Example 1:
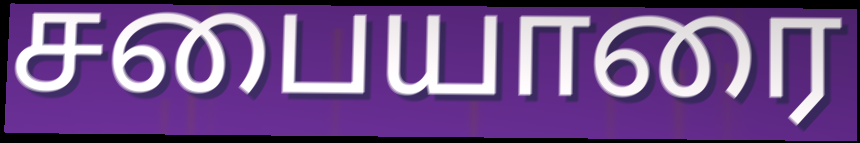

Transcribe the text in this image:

சபையாரை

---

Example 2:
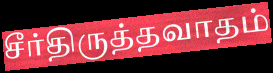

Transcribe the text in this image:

சீர்திருத்தவாதம்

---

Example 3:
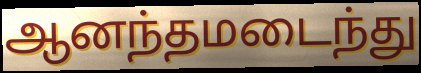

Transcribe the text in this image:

ஆனந்தமடைந்து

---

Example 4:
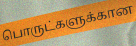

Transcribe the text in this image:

பொருட்களுக்கான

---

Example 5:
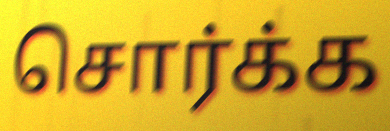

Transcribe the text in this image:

சொர்க்க